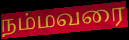
நம்மவரை